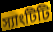
স্যাংটিটি